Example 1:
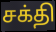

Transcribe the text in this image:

சக்தி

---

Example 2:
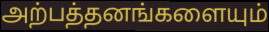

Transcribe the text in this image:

அற்பத்தனங்களையும்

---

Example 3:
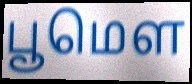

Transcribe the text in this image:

பூமௌ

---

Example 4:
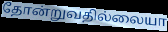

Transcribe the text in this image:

தோன்றுவதில்லையா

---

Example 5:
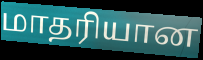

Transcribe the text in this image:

மாதரியான